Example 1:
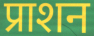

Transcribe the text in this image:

प्राशन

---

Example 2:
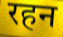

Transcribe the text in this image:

रहन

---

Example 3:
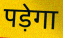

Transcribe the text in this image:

पड़ेगा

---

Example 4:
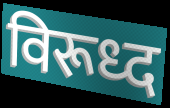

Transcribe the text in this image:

विरूध्द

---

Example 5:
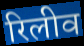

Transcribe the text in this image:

रिलीव